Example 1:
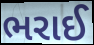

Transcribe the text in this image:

ભરાઈ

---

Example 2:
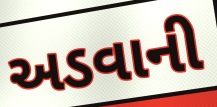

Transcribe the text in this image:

અડવાની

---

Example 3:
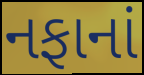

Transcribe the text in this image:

નફાનાં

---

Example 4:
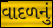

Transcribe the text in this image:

વાદળનું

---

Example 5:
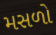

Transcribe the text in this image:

મસળો